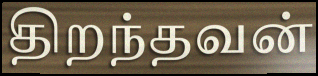
திறந்தவன்